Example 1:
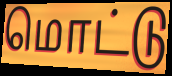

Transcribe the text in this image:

மொட்டு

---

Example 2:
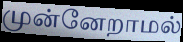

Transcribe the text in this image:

முன்னேறாமல்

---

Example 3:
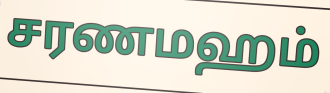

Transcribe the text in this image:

சரணமஹம்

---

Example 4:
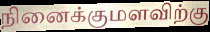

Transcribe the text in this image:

நினைக்குமளவிற்கு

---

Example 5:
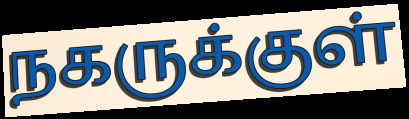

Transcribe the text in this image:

நகருக்குள்